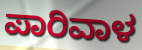
ಪಾರಿವಾಳ